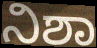
ನಿಶಾ